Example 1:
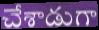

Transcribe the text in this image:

చేశాడుగా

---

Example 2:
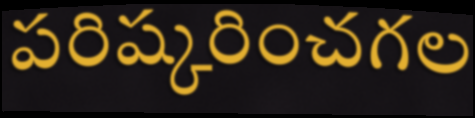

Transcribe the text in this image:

పరిష్కరించగల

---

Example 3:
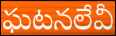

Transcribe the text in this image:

ఘటనలేవీ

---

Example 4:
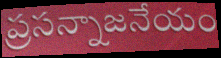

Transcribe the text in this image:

ప్రసన్నాజనేయం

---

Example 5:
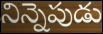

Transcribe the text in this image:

నిన్నెపుడు